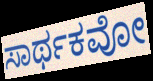
ಸಾರ್ಥಕವೋ